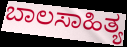
ಬಾಲಸಾಹಿತ್ಯ